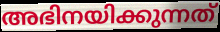
അഭിനയിക്കുന്നത്